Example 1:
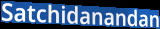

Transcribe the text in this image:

Satchidanandan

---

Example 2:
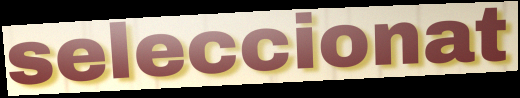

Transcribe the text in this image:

seleccionat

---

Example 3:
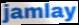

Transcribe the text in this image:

jamlay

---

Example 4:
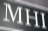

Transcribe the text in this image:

MHI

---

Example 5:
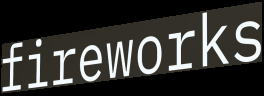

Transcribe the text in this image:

fireworks